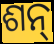
ଶନ୍